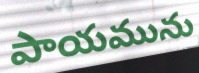
పాయమును